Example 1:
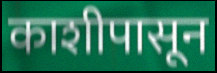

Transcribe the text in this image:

काशीपासून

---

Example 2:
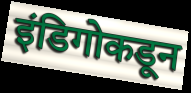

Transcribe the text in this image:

इंडिगोकडून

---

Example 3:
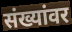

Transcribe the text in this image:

संख्यांवर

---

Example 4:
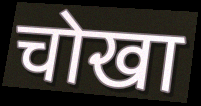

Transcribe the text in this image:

चोखा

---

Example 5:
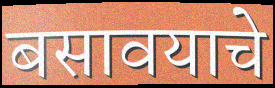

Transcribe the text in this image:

बसावयाचे